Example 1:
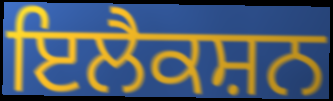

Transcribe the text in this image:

ਇਲੈਕਸ਼ਨ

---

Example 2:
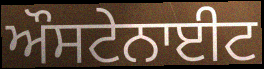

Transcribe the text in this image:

ਔਸਟੇਨਾਈਟ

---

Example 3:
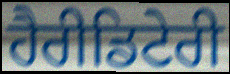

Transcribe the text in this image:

ਹੈਰੀਡਿਟੇਰੀ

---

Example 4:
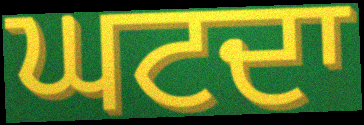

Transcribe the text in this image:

ਘਟਦਾ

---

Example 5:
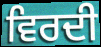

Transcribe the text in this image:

ਵਿਰਦੀ